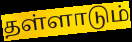
தள்ளாடும்